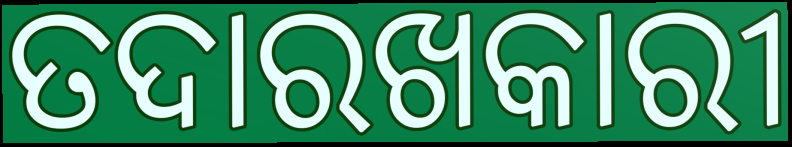
ତଦାରଖକାରୀ